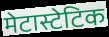
मेटास्टेटिक